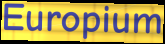
Europium